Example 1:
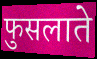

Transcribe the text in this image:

फुसलाते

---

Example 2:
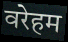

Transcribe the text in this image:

वरेहम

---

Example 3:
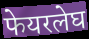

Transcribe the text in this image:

फेयरलेघ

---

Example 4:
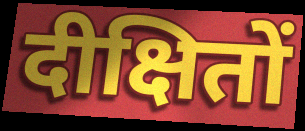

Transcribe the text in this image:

दीक्षितों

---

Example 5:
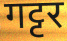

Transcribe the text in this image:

गट्टर